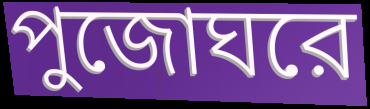
পুজোঘরে